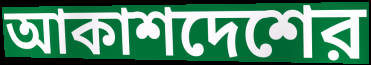
আকাশদেশের